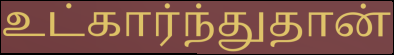
உட்கார்ந்துதான்